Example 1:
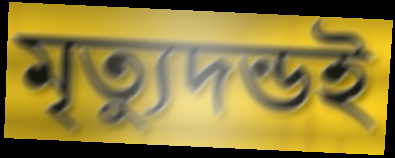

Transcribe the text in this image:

মৃত্যুদন্ডই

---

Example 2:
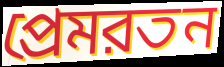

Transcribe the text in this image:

প্রেমরতন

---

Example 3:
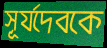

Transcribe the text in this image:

সূর্যদেবকে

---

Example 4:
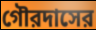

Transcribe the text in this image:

গৌরদাসের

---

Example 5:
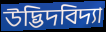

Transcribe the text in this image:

উদ্ভিদবিদ্যা